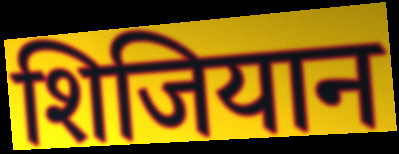
शिजियान